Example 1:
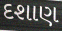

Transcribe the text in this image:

દશાણ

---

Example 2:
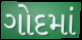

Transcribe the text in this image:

ગોદમાં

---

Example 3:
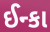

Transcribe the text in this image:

ઈન્કા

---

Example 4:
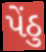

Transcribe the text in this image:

પેંઠુ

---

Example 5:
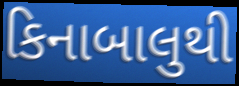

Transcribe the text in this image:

કિનાબાલુથી